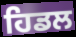
ਹਿਡਲ